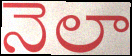
నెలా